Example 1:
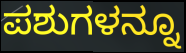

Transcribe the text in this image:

ಪಶುಗಳನ್ನೂ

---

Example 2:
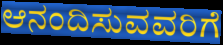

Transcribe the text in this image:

ಆನಂದಿಸುವವರಿಗೆ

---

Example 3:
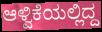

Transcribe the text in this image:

ಆಳ್ವಿಕೆಯಲ್ಲಿದ್ದ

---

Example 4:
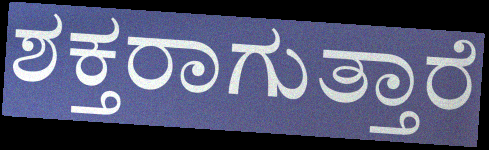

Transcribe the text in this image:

ಶಕ್ತರಾಗುತ್ತಾರೆ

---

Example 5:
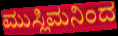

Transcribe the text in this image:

ಮುಸ್ಲಿಮನಿಂದ